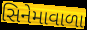
સિનેમાવાળા